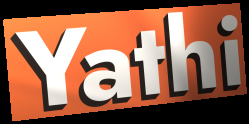
Yathi